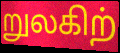
றுலகிற்